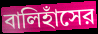
বালিহাঁসের